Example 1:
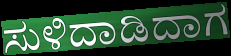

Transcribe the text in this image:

ಸುಳಿದಾಡಿದಾಗ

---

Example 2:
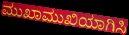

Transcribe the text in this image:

ಮುಖಾಮುಖಿಯಾಗಿಸಿ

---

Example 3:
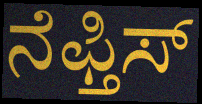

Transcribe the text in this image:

ನೆಫ್ತಿಸ್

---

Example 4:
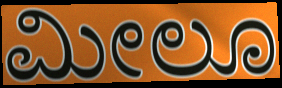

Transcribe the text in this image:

ಮೀಲೂ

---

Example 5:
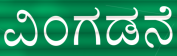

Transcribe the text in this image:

ವಿಂಗಡನೆ